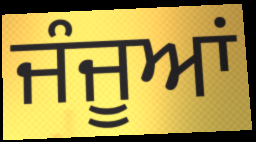
ਜੰਜੂਆਂ